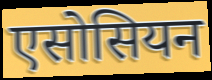
एसोसियन